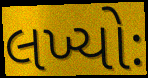
લખ્યોઃ